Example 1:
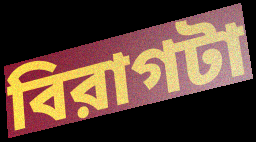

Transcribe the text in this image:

বিরাগটা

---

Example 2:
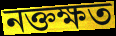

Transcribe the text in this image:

নক্তক্ষত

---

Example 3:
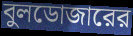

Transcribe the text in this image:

বুলডোজারের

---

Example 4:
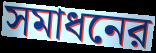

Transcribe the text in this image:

সমাধনের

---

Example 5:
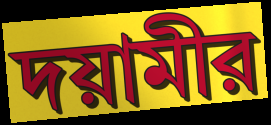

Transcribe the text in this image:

দয়ামীর